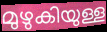
മുഴുകിയുള്ള